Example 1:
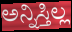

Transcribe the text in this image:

ಅನ್ನಿಸ್ತಿಲ್ಲ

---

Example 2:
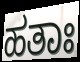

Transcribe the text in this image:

ಹತಾಃ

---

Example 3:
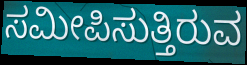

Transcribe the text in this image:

ಸಮೀಪಿಸುತ್ತಿರುವ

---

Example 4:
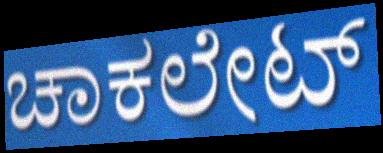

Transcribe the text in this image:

ಚಾಕಲೇಟ್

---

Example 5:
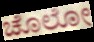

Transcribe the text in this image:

ಚೊಲೋ